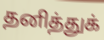
தனித்துக்